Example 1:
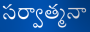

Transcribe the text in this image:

సర్వాత్మనా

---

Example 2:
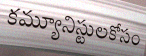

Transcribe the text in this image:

కమ్యూనిస్టులకోసం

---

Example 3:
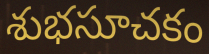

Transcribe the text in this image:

శుభసూచకం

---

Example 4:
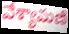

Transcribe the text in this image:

వేశ్యామణి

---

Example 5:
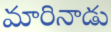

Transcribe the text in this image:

మారినాడు